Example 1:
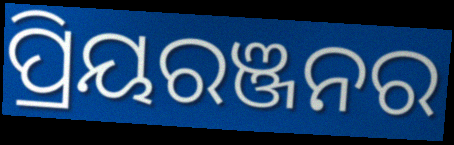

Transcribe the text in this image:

ପ୍ରିୟରଞ୍ଜନର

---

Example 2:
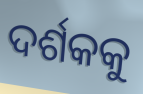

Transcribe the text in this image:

ଦର୍ଶକକୁ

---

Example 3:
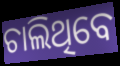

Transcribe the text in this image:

ଚାଲିଥିବେ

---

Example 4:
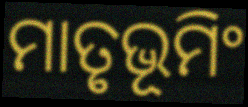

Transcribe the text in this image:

ମାତୃଭୂମିଂ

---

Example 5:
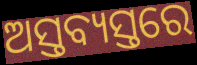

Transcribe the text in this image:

ଅସ୍ତବ୍ୟସ୍ତରେ